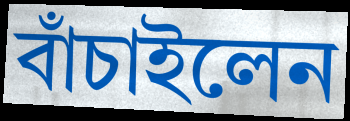
বাঁচাইলেন